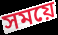
সময়ে